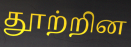
தூற்றின